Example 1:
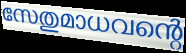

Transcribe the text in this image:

സേതുമാധവന്റെ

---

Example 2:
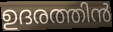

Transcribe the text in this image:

ഉദരത്തിൻ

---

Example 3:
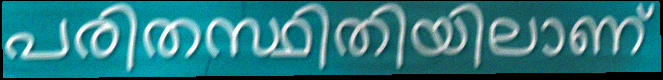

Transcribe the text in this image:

പരിതസ്ഥിതിയിലാണ്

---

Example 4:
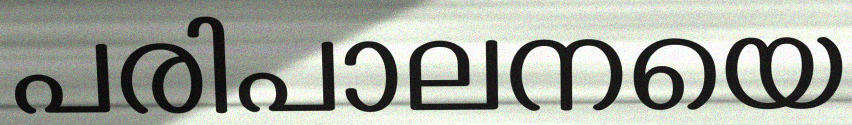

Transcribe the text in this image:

പരിപാലനയെ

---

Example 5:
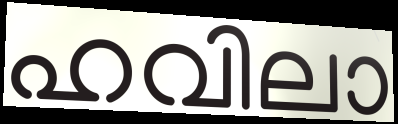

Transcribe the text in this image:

ഹവിലാ